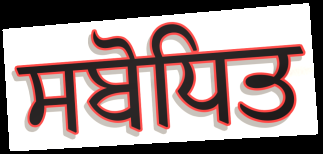
ਸਬੋਧਿਤ